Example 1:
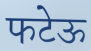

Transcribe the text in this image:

फटेऊ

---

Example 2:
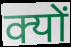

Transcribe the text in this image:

क्यों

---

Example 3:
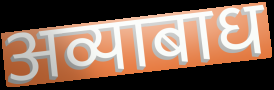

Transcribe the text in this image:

अव्याबाध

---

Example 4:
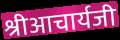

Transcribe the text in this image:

श्रीआचार्यजी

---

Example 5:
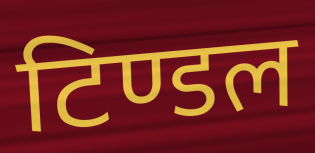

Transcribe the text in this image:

टिण्डल